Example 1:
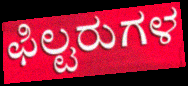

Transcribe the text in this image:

ಫಿಲ್ಟರುಗಳ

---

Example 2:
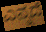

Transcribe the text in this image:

ಎನ್ನದೆ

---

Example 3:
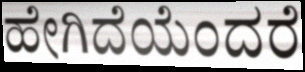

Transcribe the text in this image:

ಹೇಗಿದೆಯೆಂದರೆ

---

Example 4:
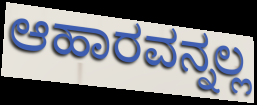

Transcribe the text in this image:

ಆಹಾರವನ್ನಲ್ಲ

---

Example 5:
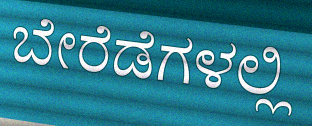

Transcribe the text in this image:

ಬೇರೆಡೆಗಳಲ್ಲಿ